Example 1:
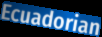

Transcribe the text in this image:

Ecuadorian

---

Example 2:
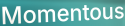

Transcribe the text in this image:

Momentous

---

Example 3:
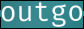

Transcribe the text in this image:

outgo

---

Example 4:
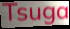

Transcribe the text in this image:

Tsuga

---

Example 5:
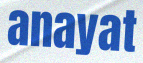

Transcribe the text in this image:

anayat